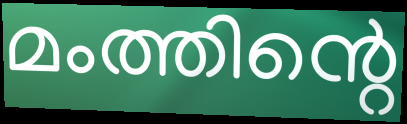
മംത്തിന്റെ